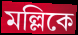
মল্লিকে